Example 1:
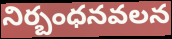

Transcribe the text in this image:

నిర్బంధనవలన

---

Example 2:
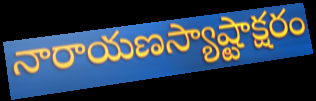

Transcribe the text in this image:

నారాయణస్యాష్టాక్షరం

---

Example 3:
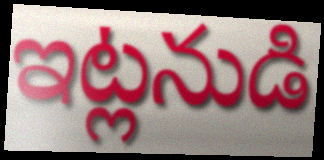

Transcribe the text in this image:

ఇట్లనుడి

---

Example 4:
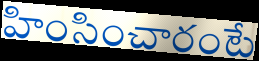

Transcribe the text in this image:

హింసించారంటే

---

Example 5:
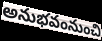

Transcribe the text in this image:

అనుభవంనుంచి